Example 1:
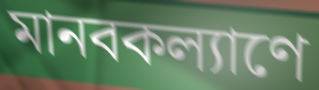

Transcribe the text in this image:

মানবকল্যাণে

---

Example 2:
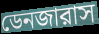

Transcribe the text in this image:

ডেনজারাস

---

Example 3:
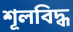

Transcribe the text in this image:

শূলবিদ্ধ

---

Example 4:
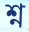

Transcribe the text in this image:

শ্ন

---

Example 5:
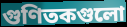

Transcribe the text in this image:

গুণিতকগুলো